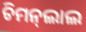
ଚିମନ୍‍ଲାଲ